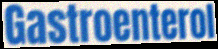
Gastroenterol